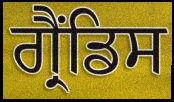
ਗ੍ਰੈਂਡਿਸ